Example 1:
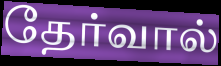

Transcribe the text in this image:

தேர்வால்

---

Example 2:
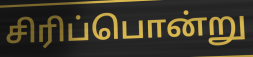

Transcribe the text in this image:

சிரிப்பொன்று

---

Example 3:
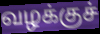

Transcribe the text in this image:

வழக்குச்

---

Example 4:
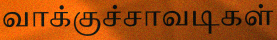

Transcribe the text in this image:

வாக்குச்சாவடிகள்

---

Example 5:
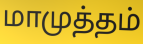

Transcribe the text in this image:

மாமுத்தம்